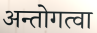
अन्तोगत्वा